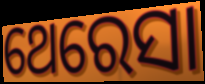
ଥେରେସା